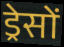
ड्रेसों